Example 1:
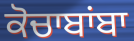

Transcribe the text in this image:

ਕੋਚਾਬਾਂਬਾ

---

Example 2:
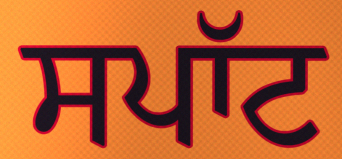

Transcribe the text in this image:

ਸਪਾੱਟ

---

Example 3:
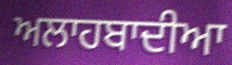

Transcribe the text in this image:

ਅਲਾਹਬਾਦੀਆ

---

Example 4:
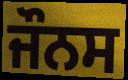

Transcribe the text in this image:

ਜੌਨਸ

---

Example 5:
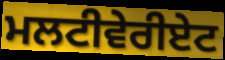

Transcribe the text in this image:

ਮਲਟੀਵੇਰੀਏਟ